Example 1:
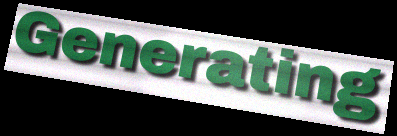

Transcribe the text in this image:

Generating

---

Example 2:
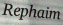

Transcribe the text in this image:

Rephaim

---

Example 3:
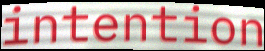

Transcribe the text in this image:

intention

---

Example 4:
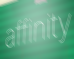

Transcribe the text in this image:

affinity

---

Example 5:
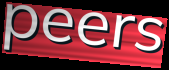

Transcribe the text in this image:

peers